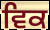
ਵਿਕ